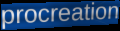
procreation